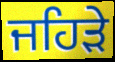
ਜਹਿੜੇ